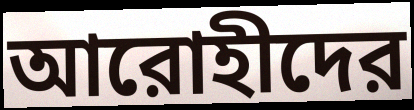
আরোহীদের